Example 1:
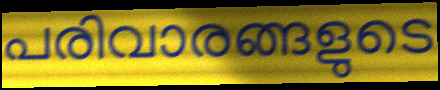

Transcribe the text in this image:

പരിവാരങ്ങളുടെ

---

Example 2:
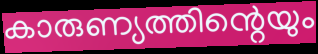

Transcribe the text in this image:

കാരുണ്യത്തിന്റെയും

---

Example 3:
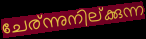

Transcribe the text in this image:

ചേര്ന്നുനില്ക്കുന്ന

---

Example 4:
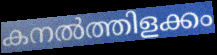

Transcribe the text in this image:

കനൽത്തിളക്കം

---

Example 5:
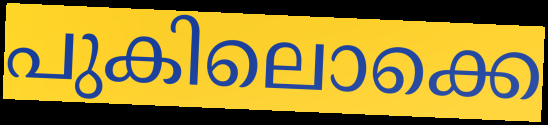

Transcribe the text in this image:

പുകിലൊക്കെ